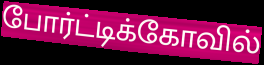
போர்ட்டிக்கோவில்